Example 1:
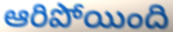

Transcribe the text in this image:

ఆరిపోయింది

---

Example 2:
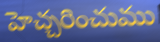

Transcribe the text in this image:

హెచ్చరించుము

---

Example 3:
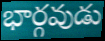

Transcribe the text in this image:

భార్గవుడు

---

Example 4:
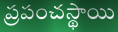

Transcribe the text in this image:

ప్రపంచస్థాయి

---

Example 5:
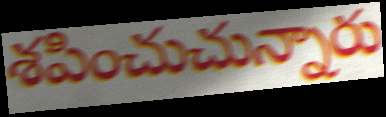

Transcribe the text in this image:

శపించుచున్నారు